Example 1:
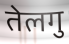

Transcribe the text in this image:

तेलगु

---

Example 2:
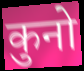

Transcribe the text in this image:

कुनो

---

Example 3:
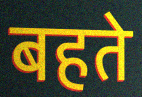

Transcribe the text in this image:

बहते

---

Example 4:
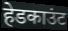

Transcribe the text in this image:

हेडकाउंट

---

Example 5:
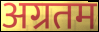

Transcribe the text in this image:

अग्रतम